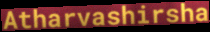
Atharvashirsha